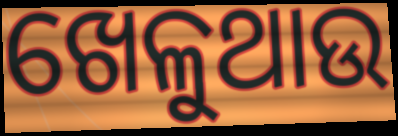
ଖେଳୁଥାଉ